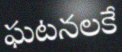
ఘటనలకే